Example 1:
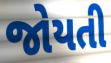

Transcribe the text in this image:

જોયતી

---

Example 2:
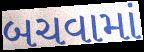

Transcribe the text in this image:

બચવામાં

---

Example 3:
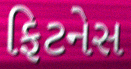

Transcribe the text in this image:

ફિટનેસ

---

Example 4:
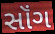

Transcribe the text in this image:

સૉંગ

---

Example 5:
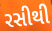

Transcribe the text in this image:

રસીથી